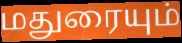
மதுரையும்